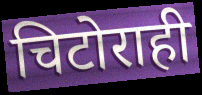
चिटोराही